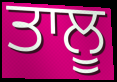
ਤਾਲੂ